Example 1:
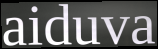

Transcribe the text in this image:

aiduva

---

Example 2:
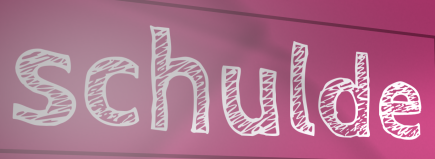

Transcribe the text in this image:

schulde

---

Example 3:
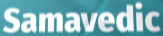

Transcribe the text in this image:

Samavedic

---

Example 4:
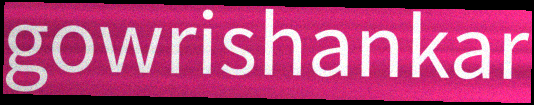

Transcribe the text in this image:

gowrishankar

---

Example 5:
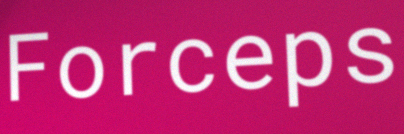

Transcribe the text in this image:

Forceps